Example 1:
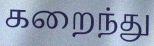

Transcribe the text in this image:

கறைந்து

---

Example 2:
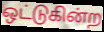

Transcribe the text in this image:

ஒட்டுகின்ற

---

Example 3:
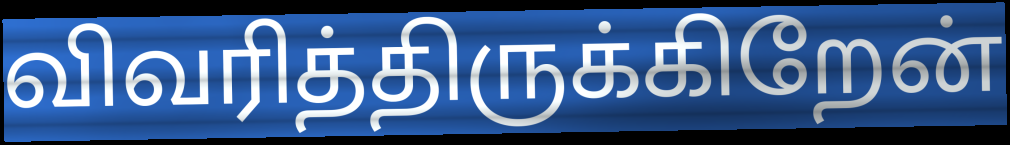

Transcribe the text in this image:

விவரித்திருக்கிறேன்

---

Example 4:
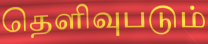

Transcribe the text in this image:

தெளிவுபடும்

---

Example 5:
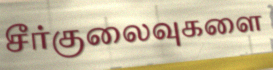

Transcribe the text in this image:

சீர்குலைவுகளை